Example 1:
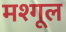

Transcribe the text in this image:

मश्गूल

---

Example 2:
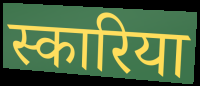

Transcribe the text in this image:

स्कारिया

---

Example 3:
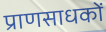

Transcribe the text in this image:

प्राणसाधकों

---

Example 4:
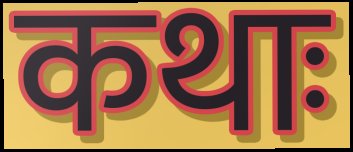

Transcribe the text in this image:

कथाः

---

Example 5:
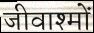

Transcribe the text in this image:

जीवाश्मों